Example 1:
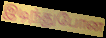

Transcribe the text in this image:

இடிந்துபோன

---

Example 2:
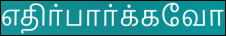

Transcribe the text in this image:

எதிர்பார்க்கவோ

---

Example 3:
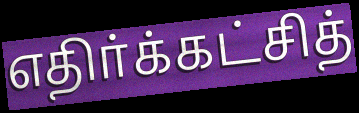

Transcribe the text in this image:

எதிர்க்கட்சித்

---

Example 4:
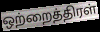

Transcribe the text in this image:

ஒற்றைத்திரள்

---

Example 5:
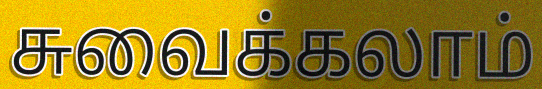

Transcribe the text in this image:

சுவைக்கலாம்